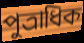
পুত্রাধিক